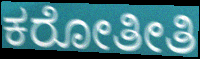
ಕರೋತೀತಿ